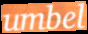
umbel